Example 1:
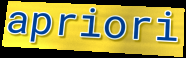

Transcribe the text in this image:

apriori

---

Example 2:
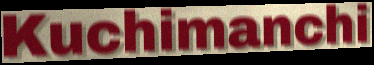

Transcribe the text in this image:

Kuchimanchi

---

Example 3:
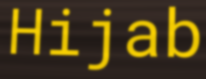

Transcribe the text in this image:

Hijab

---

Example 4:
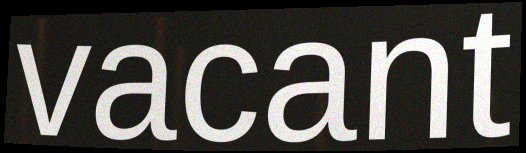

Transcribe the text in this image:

vacant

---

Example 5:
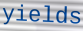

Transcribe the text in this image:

yields